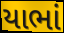
યાભાં